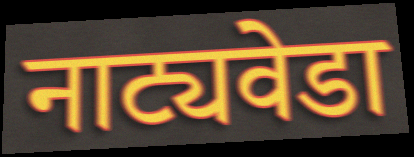
नाट्यवेडा